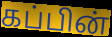
கப்பின்